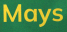
Mays